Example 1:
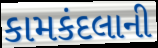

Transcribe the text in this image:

કામકંદલાની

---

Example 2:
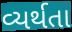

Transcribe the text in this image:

વ્યર્થતા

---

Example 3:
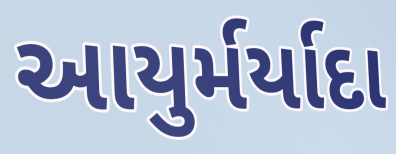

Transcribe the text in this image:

આયુર્મર્યાદા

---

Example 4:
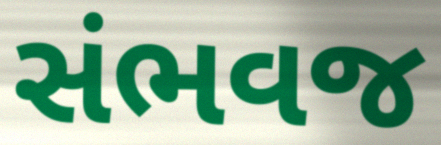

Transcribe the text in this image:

સંભવજ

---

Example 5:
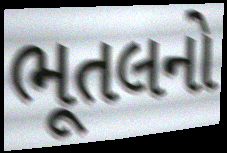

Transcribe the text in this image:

ભૂતલનો